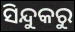
ସିନ୍ଦୁକରୁ